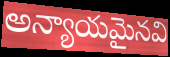
అన్యాయమైనవి